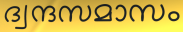
ദ്വന്ദസമാസം